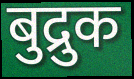
बुद्रुक